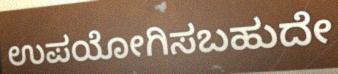
ಉಪಯೋಗಿಸಬಹುದೇ